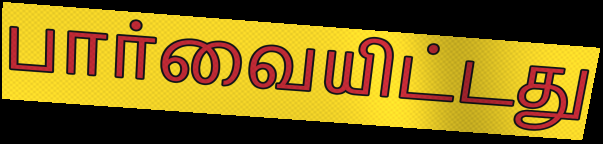
பார்வையிட்டது